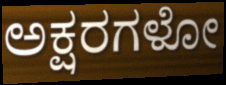
ಅಕ್ಷರಗಳೋ